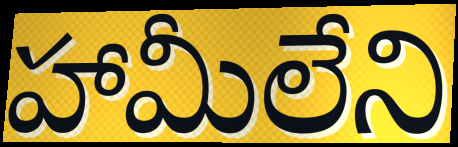
హామీలేని